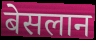
बेसलान